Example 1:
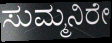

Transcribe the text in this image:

ಸುಮ್ಮನಿರೇ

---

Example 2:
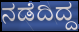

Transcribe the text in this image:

ನಡೆದಿದ್ದ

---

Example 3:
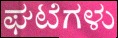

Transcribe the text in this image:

ಘಟೆಗಳು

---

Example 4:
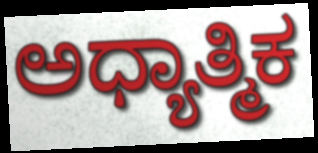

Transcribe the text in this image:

ಅಧ್ಯಾತ್ಮಿಕ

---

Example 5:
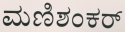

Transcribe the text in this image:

ಮಣಿಶಂಕರ್